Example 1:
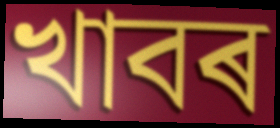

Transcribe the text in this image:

খাবৰ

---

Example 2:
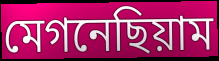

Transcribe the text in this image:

মেগনেছিয়াম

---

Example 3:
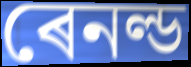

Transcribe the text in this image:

ৰেনল্ড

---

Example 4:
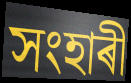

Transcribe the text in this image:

সংহাৰী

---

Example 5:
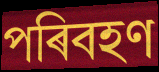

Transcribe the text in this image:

পৰিবহণ